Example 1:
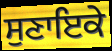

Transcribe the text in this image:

ਸੁਣਾਇਕੇ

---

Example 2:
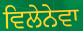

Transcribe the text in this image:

ਵਿਲੇਨੇਵਾ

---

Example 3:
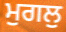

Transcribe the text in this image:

ਮੁਗਲੁ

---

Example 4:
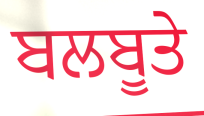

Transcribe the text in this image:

ਬਲਬੂਤੇ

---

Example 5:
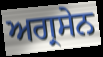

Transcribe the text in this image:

ਅਗ੍ਰਸੇਨ